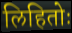
लिहितोः